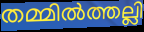
തമ്മിൽത്തല്ലി